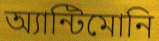
অ্যান্টিমোনি